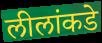
लीलांकडे